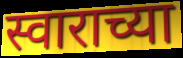
स्वाराच्या